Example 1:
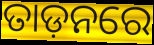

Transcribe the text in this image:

ତାଡ଼ନରେ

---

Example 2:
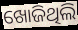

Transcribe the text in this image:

ଖୋଜିଥିଲି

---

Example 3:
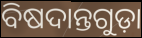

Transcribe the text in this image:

ବିଷଦାନ୍ତଗୁଡ଼ା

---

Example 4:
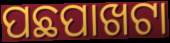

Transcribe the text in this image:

ପଛପାଖଟା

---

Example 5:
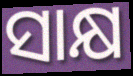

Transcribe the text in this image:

ସାକ୍ଷ